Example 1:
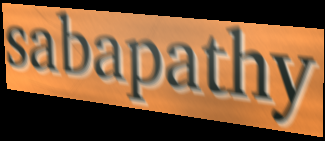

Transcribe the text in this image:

sabapathy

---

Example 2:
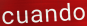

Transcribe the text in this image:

cuando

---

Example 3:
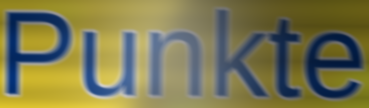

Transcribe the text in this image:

Punkte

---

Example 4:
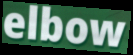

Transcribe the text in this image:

elbow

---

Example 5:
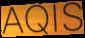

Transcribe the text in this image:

AQIS